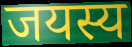
जयस्य